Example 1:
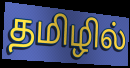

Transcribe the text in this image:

தமிழில்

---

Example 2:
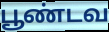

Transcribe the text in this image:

பூண்டவ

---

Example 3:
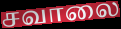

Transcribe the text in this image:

சவாலை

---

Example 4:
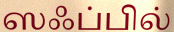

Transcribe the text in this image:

ஸஃப்பில்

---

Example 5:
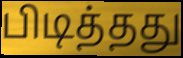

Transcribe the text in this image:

பிடித்தது